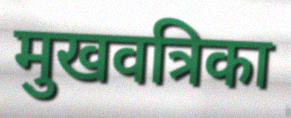
मुखवत्रिका